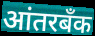
आंतरबँक